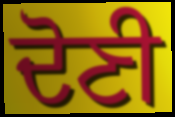
ਦੋਣੀ